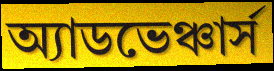
অ্যাডভেঞ্চার্স